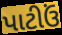
પાટીઉં